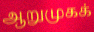
ஆறுமுகக்